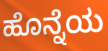
ಹೊನ್ನೆಯ